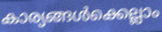
കാര്യങ്ങൾക്കെല്ലാം